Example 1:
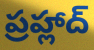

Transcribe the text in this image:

ప్రహ్లాద్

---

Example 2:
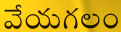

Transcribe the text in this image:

వేయగలం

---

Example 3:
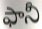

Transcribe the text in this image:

ఫానీ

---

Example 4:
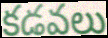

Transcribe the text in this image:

కడవలు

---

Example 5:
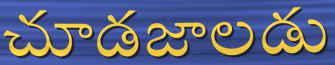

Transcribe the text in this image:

చూడజాలడు